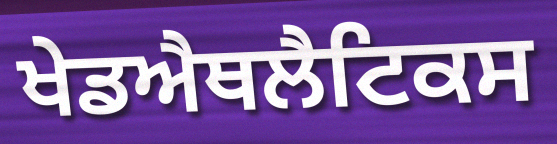
ਖੇਡਐਥਲੈਟਿਕਸ